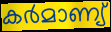
കർമാണ്യ്